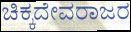
ಚಿಕ್ಕದೇವರಾಜರ